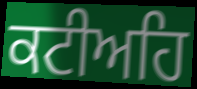
ਕਟੀਅਹਿ